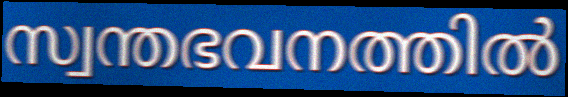
സ്വന്തഭവനത്തിൽ